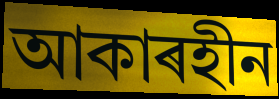
আকাৰহীন